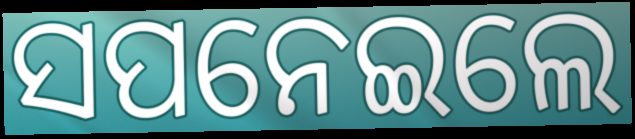
ସପନେଇଲେ